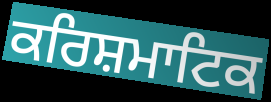
ਕਰਿਸ਼ਮਾਟਿਕ